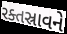
રક્તસ્રાવને